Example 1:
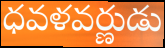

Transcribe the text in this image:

ధవళవర్ణుడు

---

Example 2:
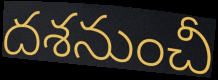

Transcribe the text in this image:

దశనుంచీ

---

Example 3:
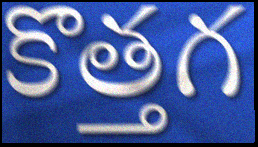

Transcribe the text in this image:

కొత్తగ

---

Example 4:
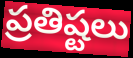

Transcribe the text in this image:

ప్రతిష్టలు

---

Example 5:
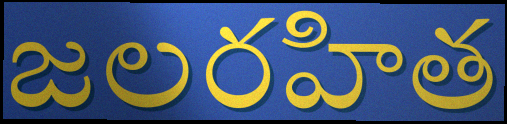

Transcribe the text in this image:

జలరహిత